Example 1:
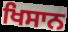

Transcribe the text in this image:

ਖਿਸਾਨ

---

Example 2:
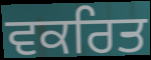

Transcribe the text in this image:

ਵਕਰਿਤ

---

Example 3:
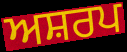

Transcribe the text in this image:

ਅਸ਼ਰਪ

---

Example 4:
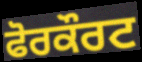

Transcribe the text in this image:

ਫੋਰਕੌਰਟ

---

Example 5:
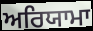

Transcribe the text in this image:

ਅਰਿਯਾਮਾ